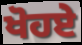
ਖੋਹਏ